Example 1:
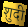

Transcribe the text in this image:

शुदी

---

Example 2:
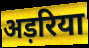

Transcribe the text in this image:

अड़रिया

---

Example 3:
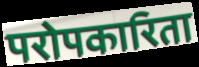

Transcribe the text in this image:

परोपकारिता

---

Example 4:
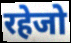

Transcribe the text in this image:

रहेजो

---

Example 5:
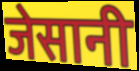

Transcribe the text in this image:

जेसानी